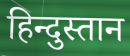
हिन्दुस्तान